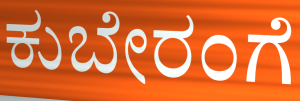
ಕುಬೇರಂಗೆ